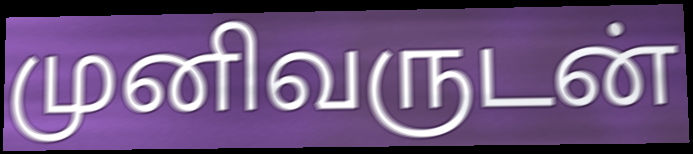
முனிவருடன்